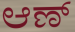
ಆಣ್